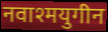
नवाश्मयुगीन